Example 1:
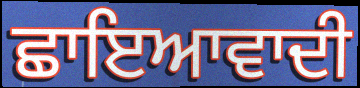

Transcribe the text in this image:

ਛਾਇਆਵਾਦੀ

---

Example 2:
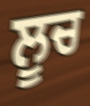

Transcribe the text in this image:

ਲੂਚ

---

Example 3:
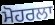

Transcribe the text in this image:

ਮੋਹਰਲਾ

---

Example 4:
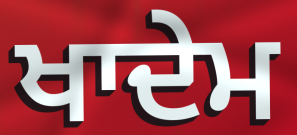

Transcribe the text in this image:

ਖਾਦੇਮ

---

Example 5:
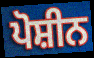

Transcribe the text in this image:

ਪੋਸ਼ੀਨ